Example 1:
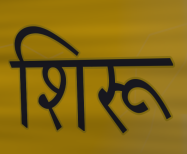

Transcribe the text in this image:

शिरू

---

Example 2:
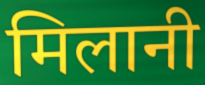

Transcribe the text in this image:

मिलानी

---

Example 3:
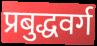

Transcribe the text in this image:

प्रबुद्धवर्ग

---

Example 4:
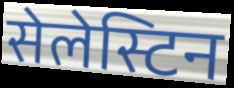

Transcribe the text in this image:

सेलेस्टिन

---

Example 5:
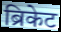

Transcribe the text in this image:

ब्रिकेट